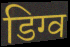
डिग्व